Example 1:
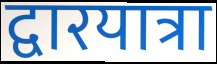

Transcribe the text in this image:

द्वारयात्रा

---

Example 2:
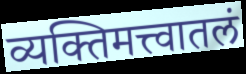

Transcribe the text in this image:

व्यक्तिमत्त्वातलं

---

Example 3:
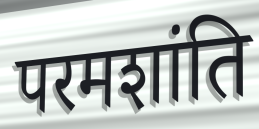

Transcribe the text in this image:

परमशांति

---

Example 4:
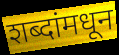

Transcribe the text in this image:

शब्दांमधून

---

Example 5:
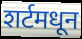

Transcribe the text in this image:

शर्टमधून